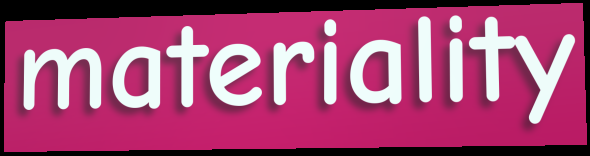
materiality